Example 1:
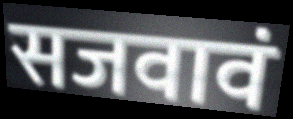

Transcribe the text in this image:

सजवावं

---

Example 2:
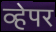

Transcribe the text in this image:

व्हेपर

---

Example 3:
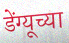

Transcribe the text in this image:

डेंग्यूच्या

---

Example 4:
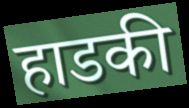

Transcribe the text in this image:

हाडकी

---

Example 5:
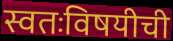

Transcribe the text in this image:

स्वतःविषयीची